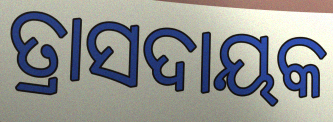
ତ୍ରାସଦାୟକ